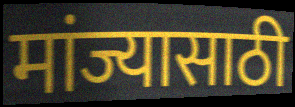
मांज्यासाठी